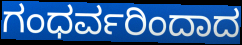
ಗಂಧರ್ವರಿಂದಾದ